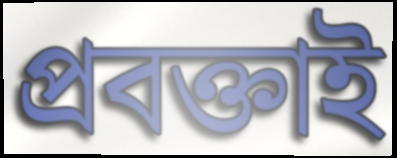
প্রবক্তাই